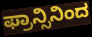
ಫ್ರಾನ್ಸಿನಿಂದ